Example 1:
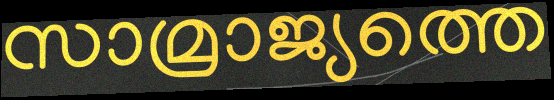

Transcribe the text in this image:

സാമ്രാജ്യത്തെ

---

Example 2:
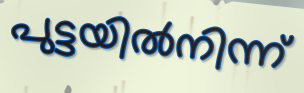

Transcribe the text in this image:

പുട്ടയിൽനിന്ന്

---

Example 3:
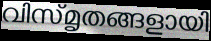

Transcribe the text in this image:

വിസ്മൃതങ്ങളായി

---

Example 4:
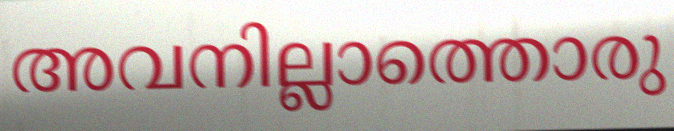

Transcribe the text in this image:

അവനില്ലാത്തൊരു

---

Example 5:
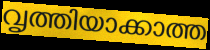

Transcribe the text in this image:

വൃത്തിയാക്കാത്ത